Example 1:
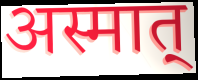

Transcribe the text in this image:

अस्मात्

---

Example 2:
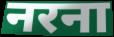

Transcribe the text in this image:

नरना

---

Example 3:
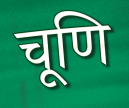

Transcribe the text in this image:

चूणि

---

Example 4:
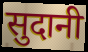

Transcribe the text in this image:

सुदानी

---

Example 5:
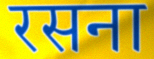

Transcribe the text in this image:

रसना